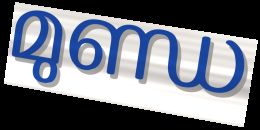
മുണ്ഡ